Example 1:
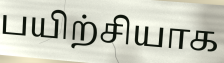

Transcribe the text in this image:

பயிற்சியாக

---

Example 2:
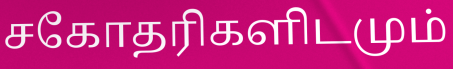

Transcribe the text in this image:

சகோதரிகளிடமும்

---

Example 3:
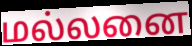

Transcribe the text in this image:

மல்லனை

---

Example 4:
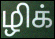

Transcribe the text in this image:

ழிக்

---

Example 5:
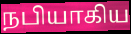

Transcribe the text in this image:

நபியாகிய